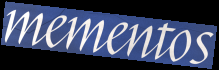
mementos